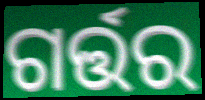
ଗର୍ତ୍ତର